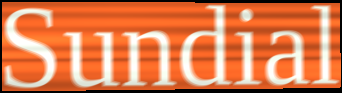
Sundial